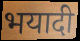
भयादी